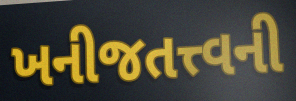
ખનીજતત્ત્વની